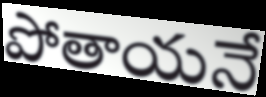
పోతాయనే